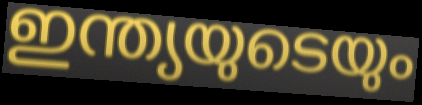
ഇന്ത്യയുടെയും